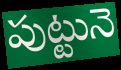
పుట్టునె